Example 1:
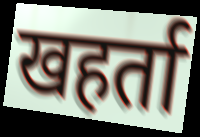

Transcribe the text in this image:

खहर्ता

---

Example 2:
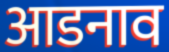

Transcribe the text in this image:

आडनाव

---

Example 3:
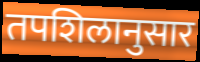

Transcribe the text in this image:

तपशिलानुसार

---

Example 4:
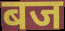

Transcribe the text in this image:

बज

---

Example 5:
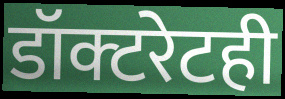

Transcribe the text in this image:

डॉक्‍टरेटही